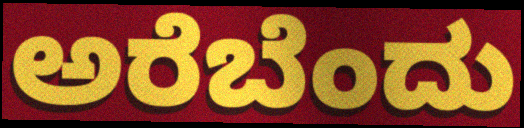
ಅರೆಬೆಂದು